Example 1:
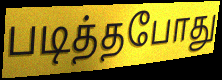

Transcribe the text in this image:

படித்தபோது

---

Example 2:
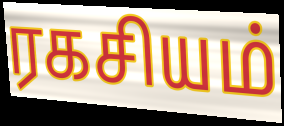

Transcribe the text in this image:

ரகசியம்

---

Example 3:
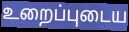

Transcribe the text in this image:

உறைப்புடைய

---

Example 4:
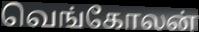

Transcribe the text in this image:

வெங்கோலன்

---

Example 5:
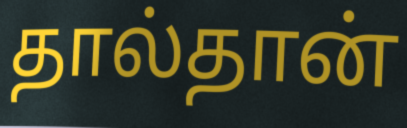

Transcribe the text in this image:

தால்தான்